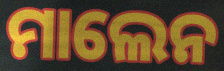
ମାଲେନ